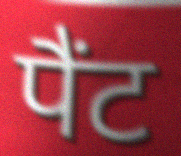
पैंट